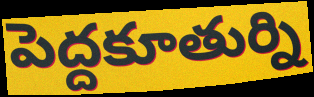
పెద్దకూతుర్ని